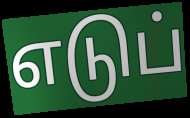
எடுப்